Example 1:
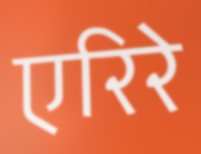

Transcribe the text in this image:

एरिरे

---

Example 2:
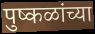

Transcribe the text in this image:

पुष्कळांच्या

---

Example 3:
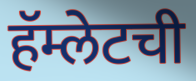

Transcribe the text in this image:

हॅम्लेटची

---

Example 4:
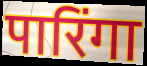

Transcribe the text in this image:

पारिंगा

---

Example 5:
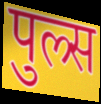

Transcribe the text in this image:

पुल्स